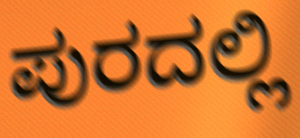
ಪುರದಲ್ಲಿ